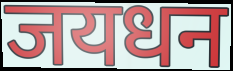
जयधन